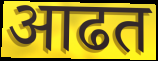
आढत